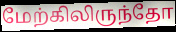
மேற்கிலிருந்தோ